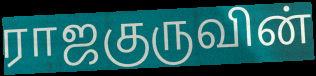
ராஜகுருவின்